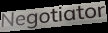
Negotiator